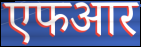
एफआर